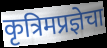
कृत्रिमप्रज्ञेचा